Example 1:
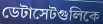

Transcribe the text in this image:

ডেটাসেটগুলিকে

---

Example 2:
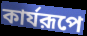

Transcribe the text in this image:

কার্যরূপে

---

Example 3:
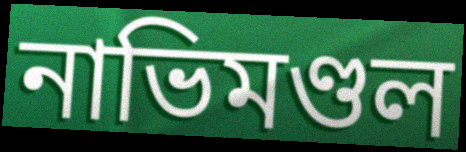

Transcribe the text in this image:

নাভিমণ্ডল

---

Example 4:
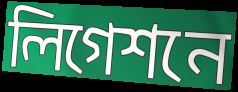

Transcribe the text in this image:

লিগেশনে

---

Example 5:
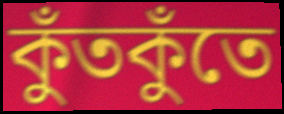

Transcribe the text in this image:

কুঁতকুঁতে